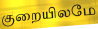
குறையிலமே